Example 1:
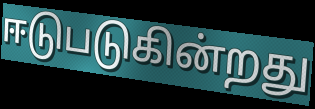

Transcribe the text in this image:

ஈடுபடுகின்றது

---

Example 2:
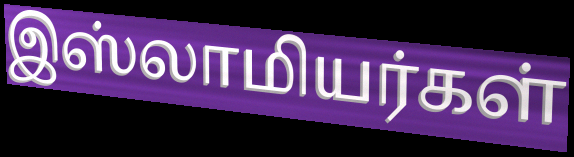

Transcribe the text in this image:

இஸ்லாமியர்கள்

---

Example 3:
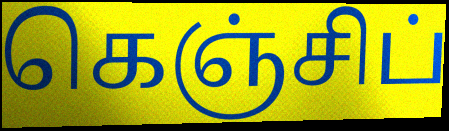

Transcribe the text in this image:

கெஞ்சிப்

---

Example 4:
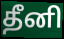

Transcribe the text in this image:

தீனி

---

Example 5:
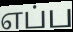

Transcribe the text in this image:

எப்ப